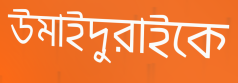
উমাইদুরাইকে